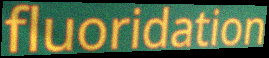
fluoridation